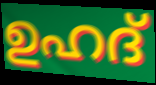
ഉഹദ്